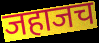
जहाजच